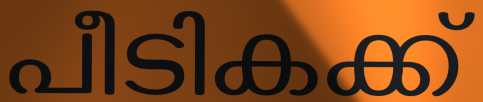
പീടികക്ക്